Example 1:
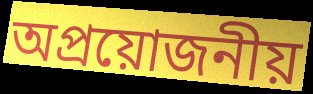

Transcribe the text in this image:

অপ্ৰয়োজনীয়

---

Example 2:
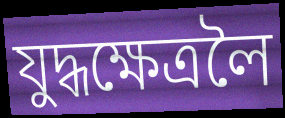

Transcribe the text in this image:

যুদ্ধক্ষেত্ৰলৈ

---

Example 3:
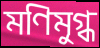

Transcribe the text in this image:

মণিমুগ্ধ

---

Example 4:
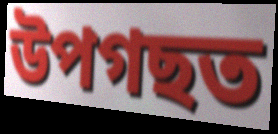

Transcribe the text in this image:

উপগছত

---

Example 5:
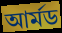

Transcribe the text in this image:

আৰ্মড